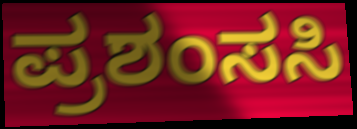
ಪ್ರಶಂಸಸಿ